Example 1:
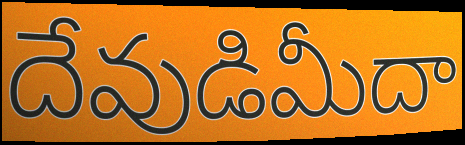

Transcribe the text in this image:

దేవుడిమీదా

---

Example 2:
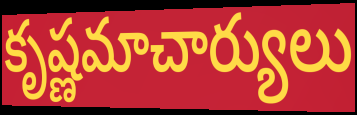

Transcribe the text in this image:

కృష్ణమాచార్యులు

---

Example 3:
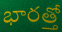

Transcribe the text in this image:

భారత్తో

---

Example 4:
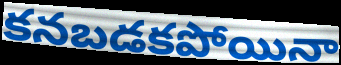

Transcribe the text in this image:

కనబడకపోయినా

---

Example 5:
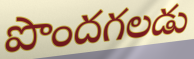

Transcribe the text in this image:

పొందగలడు